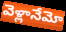
వెళ్లానేమో